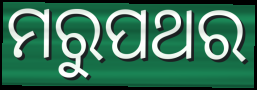
ମରୁପଥର